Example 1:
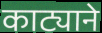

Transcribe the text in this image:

काट्याने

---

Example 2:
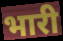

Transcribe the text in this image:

भारी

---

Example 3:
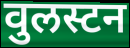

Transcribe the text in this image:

वुलस्टन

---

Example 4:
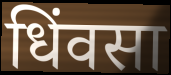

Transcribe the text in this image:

धिंवसा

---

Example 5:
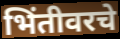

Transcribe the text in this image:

भिंतीवरचे